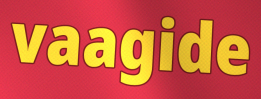
vaagide